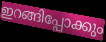
ഇറങ്ങിപ്പോക്കും